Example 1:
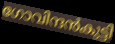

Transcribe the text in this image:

ഗോവിന്ദൻകുട്ടി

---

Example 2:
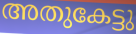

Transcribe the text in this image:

അതുകേട്ടു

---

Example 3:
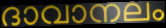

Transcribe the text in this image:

ദാവാനലം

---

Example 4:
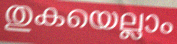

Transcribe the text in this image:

തുകയെല്ലാം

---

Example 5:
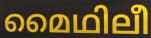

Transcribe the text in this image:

മൈഥിലീ